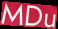
MDu